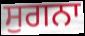
ਸੁਗਨਾ